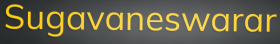
Sugavaneswarar